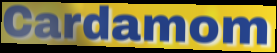
Cardamom